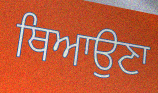
ਥਿਆਉਣਾ